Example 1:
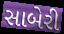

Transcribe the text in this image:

સાબેરી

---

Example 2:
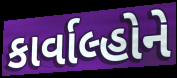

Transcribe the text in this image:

કાર્વાલ્હોને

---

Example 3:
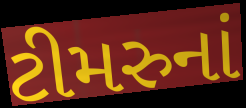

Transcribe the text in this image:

ટીમરુનાં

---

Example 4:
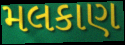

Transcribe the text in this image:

મલકાણ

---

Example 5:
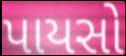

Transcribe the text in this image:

પાયસો